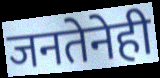
जनतेनेही